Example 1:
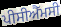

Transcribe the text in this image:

ਪੀਸੀਐੱਮਸੀ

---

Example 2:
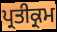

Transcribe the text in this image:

ਪ੍ਰਤੀਕ੍ਰਮ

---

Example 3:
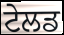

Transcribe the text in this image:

ਟੇਲਡ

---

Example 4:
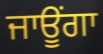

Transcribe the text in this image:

ਜਾਊਂਗਾ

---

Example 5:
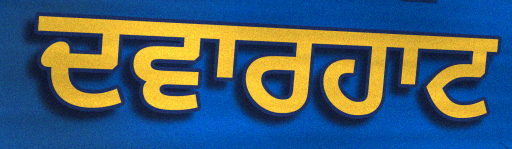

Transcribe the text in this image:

ਦਵਾਰਹਾਟ